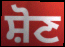
ਸ਼ੋਣ